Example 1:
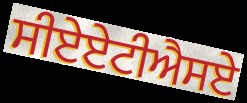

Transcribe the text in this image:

ਸੀਏਏਟੀਐਸਏ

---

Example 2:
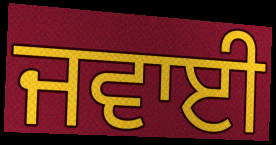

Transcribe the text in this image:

ਜਵਾਈ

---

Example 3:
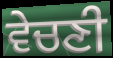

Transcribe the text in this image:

ਵੇਚਣੀ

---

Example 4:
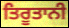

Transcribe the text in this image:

ਤਿਰੂਤਾਨੀ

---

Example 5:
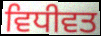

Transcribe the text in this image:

ਵਿਧੀਵਤ